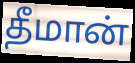
தீமான்